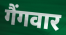
गैंगवार